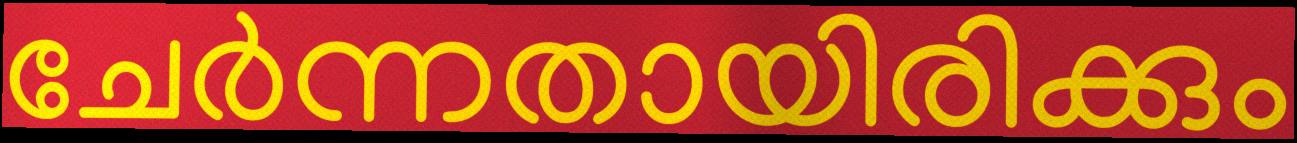
ചേർന്നതായിരിക്കും